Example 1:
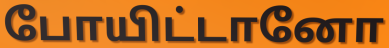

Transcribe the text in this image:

போயிட்டானோ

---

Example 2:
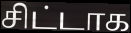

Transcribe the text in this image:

சிட்டாக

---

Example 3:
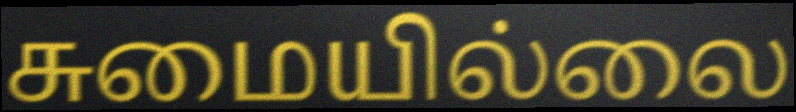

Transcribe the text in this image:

சுமையில்லை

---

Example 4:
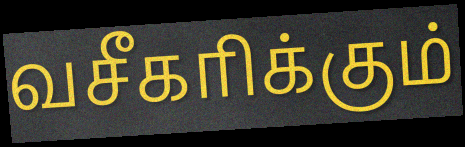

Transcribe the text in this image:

வசீகரிக்கும்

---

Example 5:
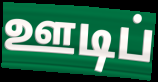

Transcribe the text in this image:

ஊடிப்